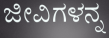
ಜೀವಿಗಳನ್ನ